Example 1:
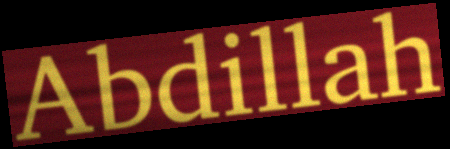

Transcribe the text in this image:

Abdillah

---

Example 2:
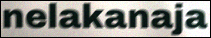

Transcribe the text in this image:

nelakanaja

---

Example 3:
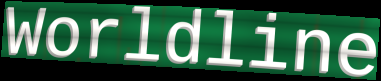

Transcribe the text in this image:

Worldline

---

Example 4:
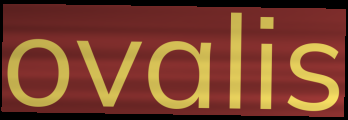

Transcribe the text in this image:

ovalis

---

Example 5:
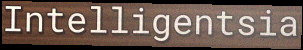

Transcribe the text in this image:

Intelligentsia